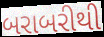
બરાબરીથી